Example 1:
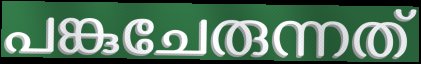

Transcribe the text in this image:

പങ്കുചേരുന്നത്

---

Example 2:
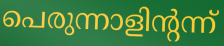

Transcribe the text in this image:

പെരുന്നാളിന്റന്ന്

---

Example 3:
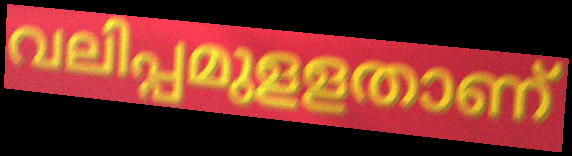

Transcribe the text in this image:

വലിപ്പമുളളതാണ്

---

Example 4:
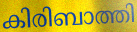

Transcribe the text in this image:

കിരിബാത്തി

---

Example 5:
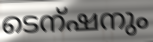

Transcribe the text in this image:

ടെന്ഷനും